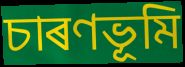
চাৰণভূমি